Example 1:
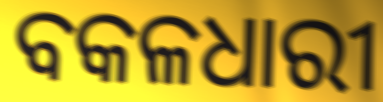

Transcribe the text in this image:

ବକଳଧାରୀ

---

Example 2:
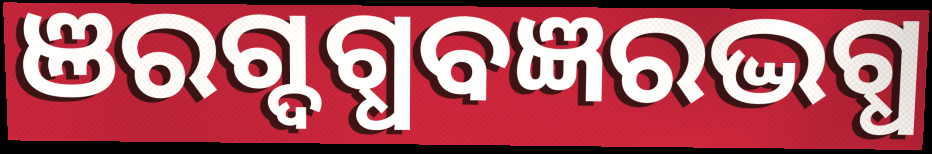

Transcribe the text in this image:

ଞରଗ୍ଦଗ୍ଧବଜ୍ଞରଦ୍ଭଗ୍ଧ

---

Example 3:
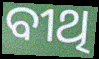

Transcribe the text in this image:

ବୀଥି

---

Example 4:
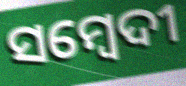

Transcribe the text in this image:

ସମ୍ବେଦୀ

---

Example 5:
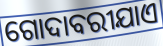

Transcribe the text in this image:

ଗୋଦାବରୀଯାଏ